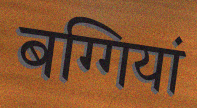
बग्गियां